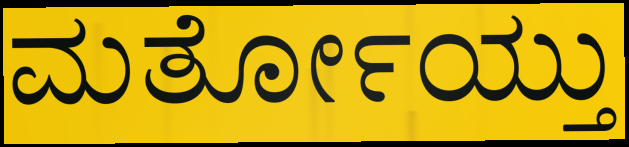
ಮರ್ತೋಯ್ತು